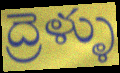
ద్రెళ్ళు